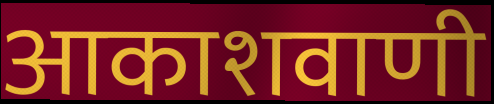
आकाशवाणी